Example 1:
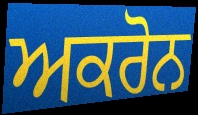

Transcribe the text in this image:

ਅਕਰੋਨ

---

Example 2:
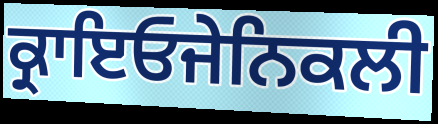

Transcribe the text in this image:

ਕ੍ਰਾਇਓਜੇਨਿਕਲੀ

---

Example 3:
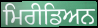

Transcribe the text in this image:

ਮਿਰੀਡਿਅਨ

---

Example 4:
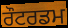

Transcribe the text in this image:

ਰੌਟਰਡਮ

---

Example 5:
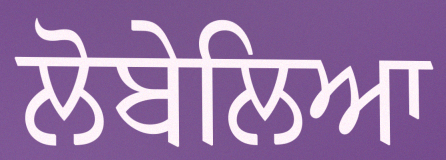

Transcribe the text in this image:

ਲੋਬੇਲਿਆ